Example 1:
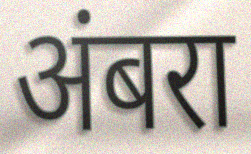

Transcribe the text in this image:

अंबरा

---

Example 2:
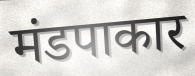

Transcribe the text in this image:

मंडपाकार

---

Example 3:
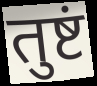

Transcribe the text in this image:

तुष्टं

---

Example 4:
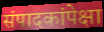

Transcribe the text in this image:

संपादकांपेक्षा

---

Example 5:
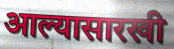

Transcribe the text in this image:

आल्यासारखी